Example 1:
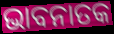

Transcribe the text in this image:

ଭାବନାତକ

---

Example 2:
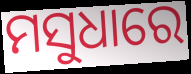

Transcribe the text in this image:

ମସୁଧାରେ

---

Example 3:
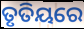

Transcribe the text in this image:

ତୃତିୟରେ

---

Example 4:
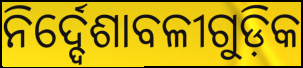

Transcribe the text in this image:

ନିର୍ଦ୍ଦେଶାବଳୀଗୁଡ଼ିକ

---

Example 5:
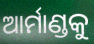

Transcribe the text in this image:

ଆର୍ମାଣ୍ଡକୁ